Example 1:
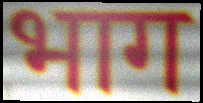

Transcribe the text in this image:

भाग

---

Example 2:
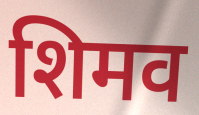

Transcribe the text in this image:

शिमव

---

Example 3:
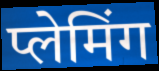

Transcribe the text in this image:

प्लेमिंग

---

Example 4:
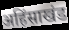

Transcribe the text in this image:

अहिंसाखंड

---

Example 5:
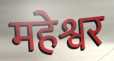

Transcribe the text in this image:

महेश्वर